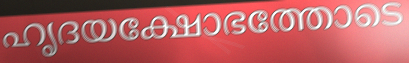
ഹൃദയക്ഷോഭത്തോടെ